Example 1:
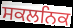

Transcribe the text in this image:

ਸਕਲਨਿਕ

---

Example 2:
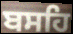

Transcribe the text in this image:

ਬਸਹਿ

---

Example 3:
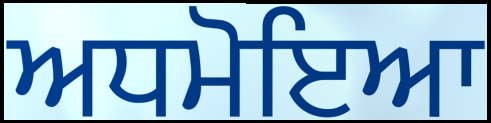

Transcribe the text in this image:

ਅਧਮੋਇਆ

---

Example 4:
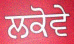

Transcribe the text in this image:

ਲਕੋਵੇ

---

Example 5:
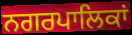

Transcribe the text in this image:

ਨਗਰਪਾਲਿਕਾਂ